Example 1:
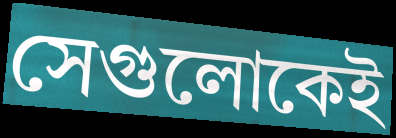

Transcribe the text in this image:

সেগুলোকেই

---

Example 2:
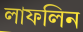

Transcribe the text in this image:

লাফলিন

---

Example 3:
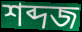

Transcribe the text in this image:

শব্দজ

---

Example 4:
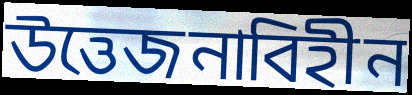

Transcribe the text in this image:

উত্তেজনাবিহীন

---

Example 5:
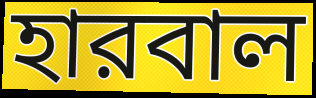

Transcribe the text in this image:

হারবাল